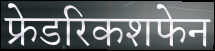
फ्रेडरिकशफेन